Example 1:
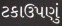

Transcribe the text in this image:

ટકાઉપણું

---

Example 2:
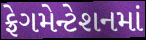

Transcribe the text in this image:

ફ્રેગમેન્ટેશનમાં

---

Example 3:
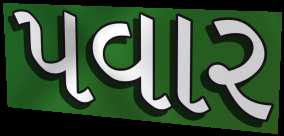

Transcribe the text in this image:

પવાર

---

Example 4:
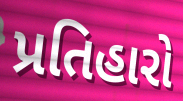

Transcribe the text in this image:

પ્રતિહારો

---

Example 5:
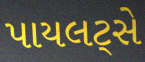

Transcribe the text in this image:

પાયલટ્સે